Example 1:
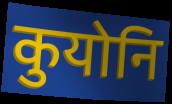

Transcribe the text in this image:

कुयोनि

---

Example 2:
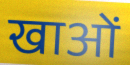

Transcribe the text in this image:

खाओं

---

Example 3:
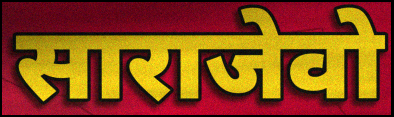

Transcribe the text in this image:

साराजेवो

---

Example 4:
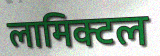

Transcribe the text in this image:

लामिक्टल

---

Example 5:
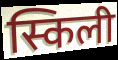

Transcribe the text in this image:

स्किली